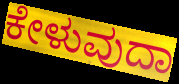
ಕೇಳುವುದಾ